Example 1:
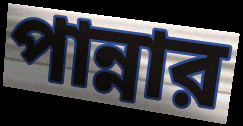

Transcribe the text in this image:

পান্নার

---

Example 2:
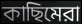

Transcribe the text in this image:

কাছিমেরা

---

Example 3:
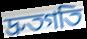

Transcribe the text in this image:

দ্রুতগতি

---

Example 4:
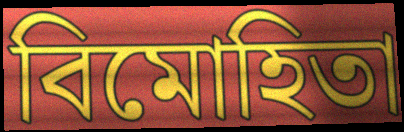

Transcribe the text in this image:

বিমোহিতা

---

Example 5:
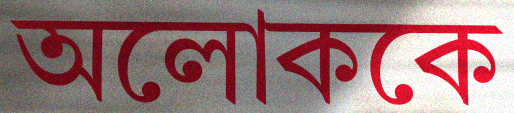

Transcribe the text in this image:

অলোককে